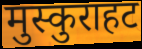
मुस्कुराहट